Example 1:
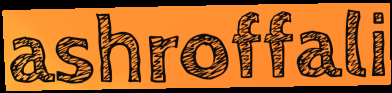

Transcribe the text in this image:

ashroffali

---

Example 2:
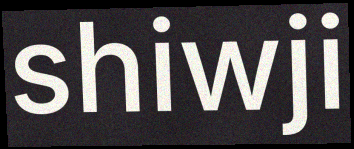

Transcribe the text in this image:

shiwji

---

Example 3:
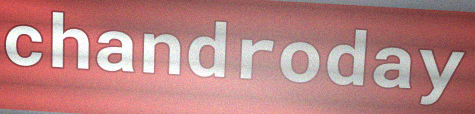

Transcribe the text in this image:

chandroday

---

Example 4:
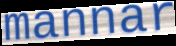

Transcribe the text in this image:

mannar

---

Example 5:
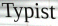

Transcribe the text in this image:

Typist